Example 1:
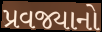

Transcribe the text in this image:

પ્રવજ્યાનો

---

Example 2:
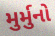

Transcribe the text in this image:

મુર્મુનો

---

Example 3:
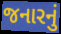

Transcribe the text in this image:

જનારનું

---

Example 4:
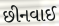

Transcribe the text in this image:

છીનવાઈ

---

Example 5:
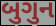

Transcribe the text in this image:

બુગુન